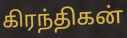
கிரந்திகன்